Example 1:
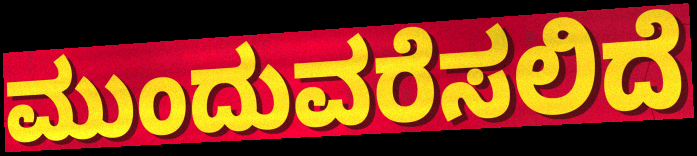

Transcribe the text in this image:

ಮುಂದುವರೆಸಲಿದೆ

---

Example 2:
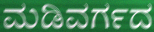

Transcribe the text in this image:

ಮಡಿವರ್ಗದ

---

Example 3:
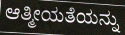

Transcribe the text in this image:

ಆತ್ಮೀಯತೆಯನ್ನು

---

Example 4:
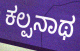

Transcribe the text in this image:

ಕಲ್ಪನಾಥ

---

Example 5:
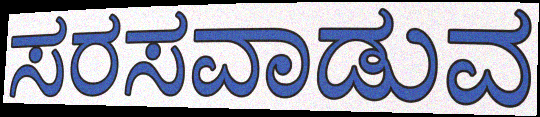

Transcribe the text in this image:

ಸರಸವಾಡುವ